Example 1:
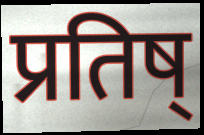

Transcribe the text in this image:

प्रतिष्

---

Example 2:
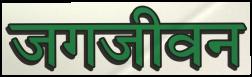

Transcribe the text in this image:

जगजीवन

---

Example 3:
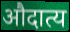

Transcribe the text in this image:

औदात्य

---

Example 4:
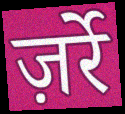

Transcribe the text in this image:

ज़र्रे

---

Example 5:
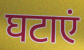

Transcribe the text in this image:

घटाएं